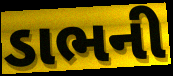
ડાભની